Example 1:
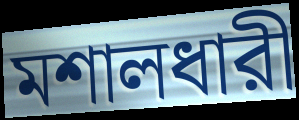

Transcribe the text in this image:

মশালধারী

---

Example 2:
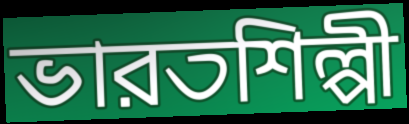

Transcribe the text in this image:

ভারতশিল্পী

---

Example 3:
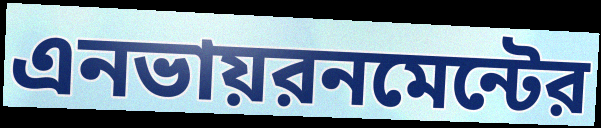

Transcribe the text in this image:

এনভায়রনমেন্টের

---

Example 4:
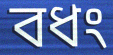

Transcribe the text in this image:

বধং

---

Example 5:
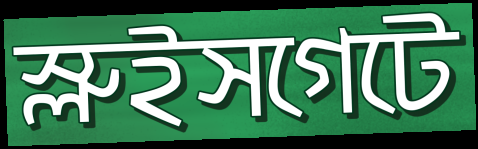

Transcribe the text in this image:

স্লুইসগেটে